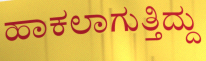
ಹಾಕಲಾಗುತ್ತಿದ್ದು